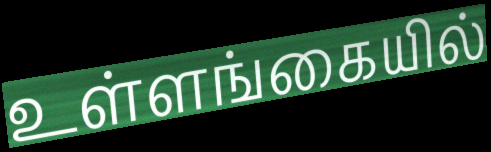
உள்ளங்கையில்